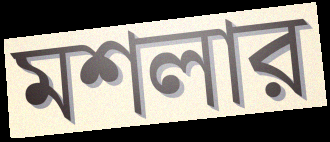
মশলার